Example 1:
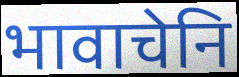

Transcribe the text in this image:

भावाचेनि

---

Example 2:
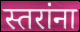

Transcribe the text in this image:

स्तरांना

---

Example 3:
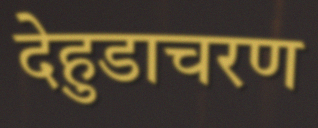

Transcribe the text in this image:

देहुडाचरण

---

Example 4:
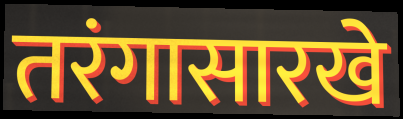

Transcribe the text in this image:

तरंगासारखे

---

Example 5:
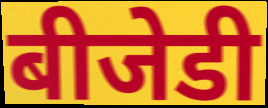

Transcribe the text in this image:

बीजेडी